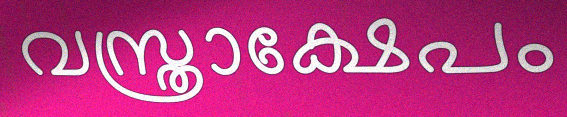
വസ്ത്രാക്ഷേപം